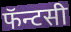
फॅन्टसी